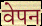
वेपन